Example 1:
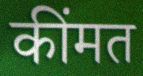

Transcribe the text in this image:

कींमत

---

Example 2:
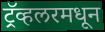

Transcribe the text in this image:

ट्रॅव्हलरमधून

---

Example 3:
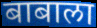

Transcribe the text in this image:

बाबाला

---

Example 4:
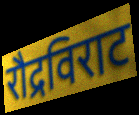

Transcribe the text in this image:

रौद्रविराट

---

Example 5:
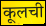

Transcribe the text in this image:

कूलची